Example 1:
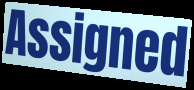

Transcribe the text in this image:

Assigned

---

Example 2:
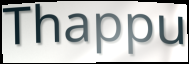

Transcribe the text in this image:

Thappu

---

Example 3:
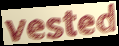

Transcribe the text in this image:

vested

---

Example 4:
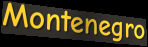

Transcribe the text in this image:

Montenegro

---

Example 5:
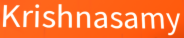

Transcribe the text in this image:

Krishnasamy